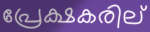
പ്രേക്ഷകരില്